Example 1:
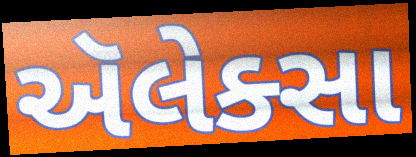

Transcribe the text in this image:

ઍલેક્સા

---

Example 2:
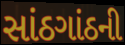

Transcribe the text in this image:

સાંઠગાંઠની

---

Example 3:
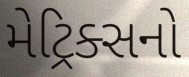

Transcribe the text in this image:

મેટ્રિક્સનો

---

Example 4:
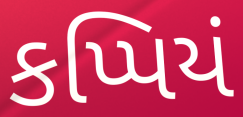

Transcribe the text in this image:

કપ્પિયં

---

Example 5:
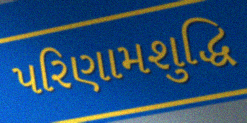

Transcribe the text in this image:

પરિણામશુદ્ધિ